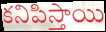
కనిపిస్తాయి